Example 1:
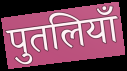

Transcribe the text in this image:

पुतलियाँ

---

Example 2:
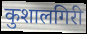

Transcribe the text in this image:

कुशालगिरी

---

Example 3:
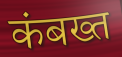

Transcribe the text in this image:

कंबख्त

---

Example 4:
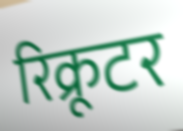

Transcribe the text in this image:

रिक्रूटर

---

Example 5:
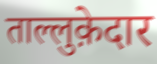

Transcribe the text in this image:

ताल्लुक़ेदार